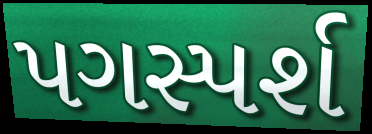
પગસ્પર્શ